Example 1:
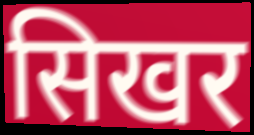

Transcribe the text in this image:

सिखर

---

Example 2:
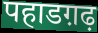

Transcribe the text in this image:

पहाडग़ढ़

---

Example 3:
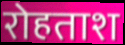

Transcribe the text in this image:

रोहताश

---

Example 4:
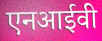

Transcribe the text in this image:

एनआईवी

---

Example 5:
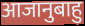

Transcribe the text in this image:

आजानुबाहु